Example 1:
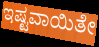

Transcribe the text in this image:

ಇಷ್ಟವಾಯಿತೇ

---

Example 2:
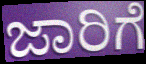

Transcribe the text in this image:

ಜಾರಿಗೆ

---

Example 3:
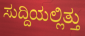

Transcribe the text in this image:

ಸುದ್ದಿಯಲ್ಲಿತ್ತು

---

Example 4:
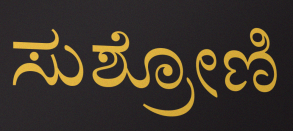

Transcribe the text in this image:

ಸುಶ್ರೋಣಿ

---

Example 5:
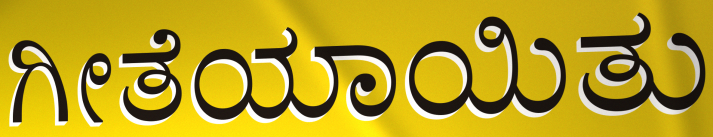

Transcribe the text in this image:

ಗೀತೆಯಾಯಿತು